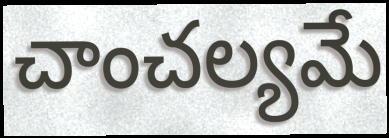
చాంచల్యమే